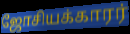
ஜோசியக்காரர்